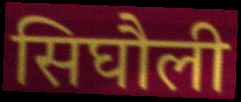
सिघौली